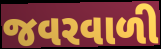
જવરવાળી